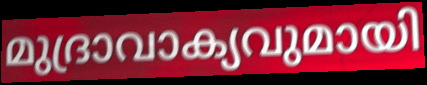
മുദ്രാവാക്യവുമായി